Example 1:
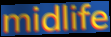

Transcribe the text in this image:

midlife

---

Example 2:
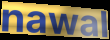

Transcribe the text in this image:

nawal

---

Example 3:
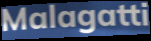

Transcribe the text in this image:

Malagatti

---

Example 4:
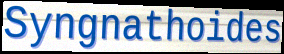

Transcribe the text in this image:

Syngnathoides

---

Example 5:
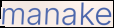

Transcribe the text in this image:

manake